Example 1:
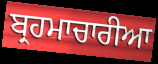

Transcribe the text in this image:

ਬ੍ਰਹਮਾਚਾਰੀਆ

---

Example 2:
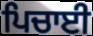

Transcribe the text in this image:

ਪਿਚਾਈ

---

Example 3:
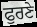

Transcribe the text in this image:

ਫੁਰਣੇ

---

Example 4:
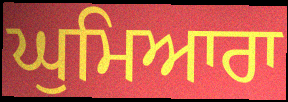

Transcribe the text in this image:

ਘੁਮਿਆਰਾ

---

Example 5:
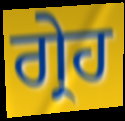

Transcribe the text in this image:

ਗ੍ਰੇਹ